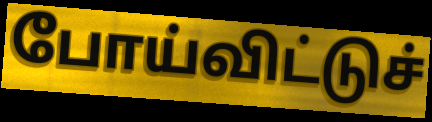
போய்விட்டுச்